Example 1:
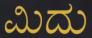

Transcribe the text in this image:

ಮಿದು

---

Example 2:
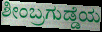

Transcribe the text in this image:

ಶೀಂಬ್ರಗುಡ್ಡೆಯ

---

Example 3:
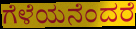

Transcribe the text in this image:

ಗೆಳೆಯನೆಂದರೆ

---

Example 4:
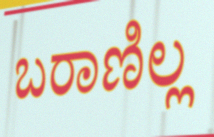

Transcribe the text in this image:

ಬರಾಣಿಲ್ಲ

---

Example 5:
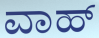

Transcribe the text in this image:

ವಾಹ್